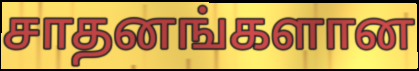
சாதனங்களான